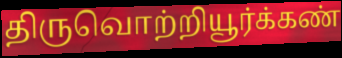
திருவொற்றியூர்க்கண்